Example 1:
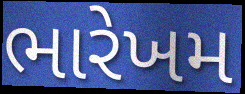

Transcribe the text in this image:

ભારેખમ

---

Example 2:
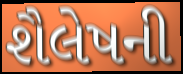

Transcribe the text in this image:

શૈલેષની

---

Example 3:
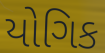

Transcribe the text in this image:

યોગિક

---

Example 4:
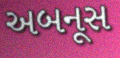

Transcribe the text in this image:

અબનૂસ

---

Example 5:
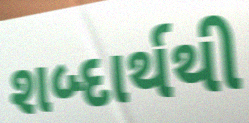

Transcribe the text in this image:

શબ્દાર્થથી